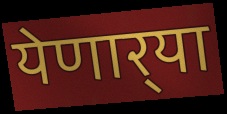
येणार्‍या